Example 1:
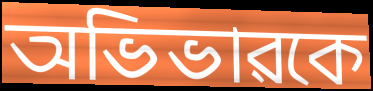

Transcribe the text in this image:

অভিভাৱকে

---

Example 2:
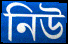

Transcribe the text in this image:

নিউ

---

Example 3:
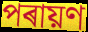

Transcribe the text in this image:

পৰায়ণ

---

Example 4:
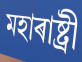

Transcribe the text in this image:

মহাৰাষ্ট্ৰী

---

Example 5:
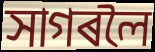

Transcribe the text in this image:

সাগৰলৈ